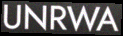
UNRWA